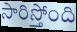
సారిస్తోంది